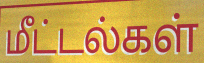
மீட்டல்கள்